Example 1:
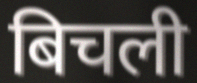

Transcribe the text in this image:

बिचली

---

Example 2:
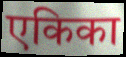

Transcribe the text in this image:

एकिका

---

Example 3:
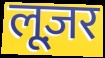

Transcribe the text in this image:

लूज़र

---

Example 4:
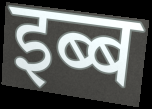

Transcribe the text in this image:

इब्ब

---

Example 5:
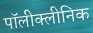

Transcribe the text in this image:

पॉलीक्लीनिक